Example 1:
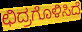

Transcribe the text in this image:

ಛಿದ್ರಗೊಳಿಸಿದೆ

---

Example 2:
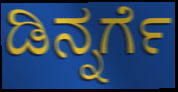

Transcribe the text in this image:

ಡಿನ್ನರ್ಗೆ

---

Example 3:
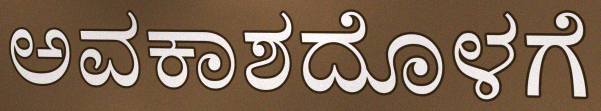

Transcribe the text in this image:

ಅವಕಾಶದೊಳಗೆ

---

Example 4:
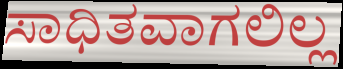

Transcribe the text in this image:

ಸಾಧಿತವಾಗಲಿಲ್ಲ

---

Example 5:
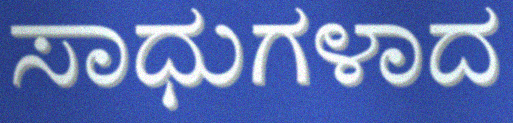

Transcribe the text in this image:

ಸಾಧುಗಳಾದ